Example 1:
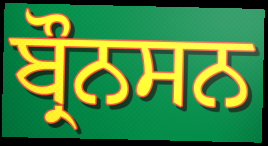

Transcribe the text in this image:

ਬ੍ਰੌਨਸਨ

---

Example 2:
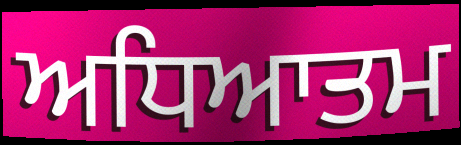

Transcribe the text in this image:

ਅਧਿਆਤਮ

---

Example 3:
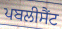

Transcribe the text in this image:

ਪਬਲੀਸੈਂਟ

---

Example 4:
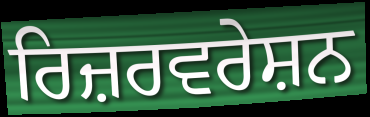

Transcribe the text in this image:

ਰਿਜ਼ਰਵਰੇਸ਼ਨ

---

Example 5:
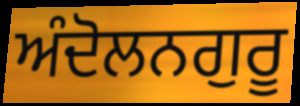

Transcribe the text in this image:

ਅੰਦੋਲਨਗੁਰੂ